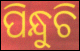
ପିନ୍ଧୁଚି